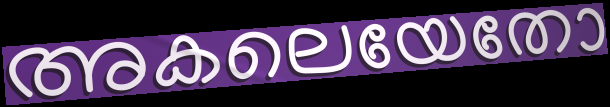
അകലെയേതോ